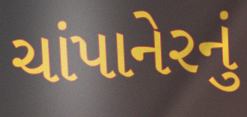
ચાંપાનેરનું